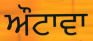
ਔਟਾਵਾ